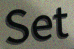
Set